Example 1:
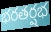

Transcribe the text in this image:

భరతర్షభ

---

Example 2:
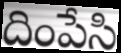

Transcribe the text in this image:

దింపేసి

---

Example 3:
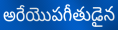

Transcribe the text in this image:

అరేయొపగీతుడైన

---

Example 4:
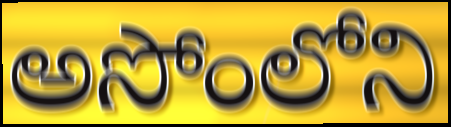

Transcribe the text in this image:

అసోంలోని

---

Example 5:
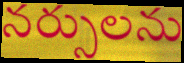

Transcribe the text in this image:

నర్సులను